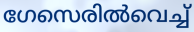
ഗേസെരിൽവെച്ച്